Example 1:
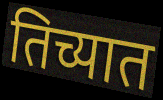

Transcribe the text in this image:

तिच्यात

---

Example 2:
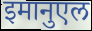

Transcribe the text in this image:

इमानुएल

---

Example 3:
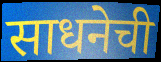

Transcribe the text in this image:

साधनेची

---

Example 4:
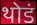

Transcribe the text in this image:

थोडं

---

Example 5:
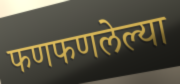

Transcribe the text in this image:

फणफणलेल्या